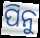
ପିନୁ